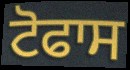
ਟੋਫਾਸ